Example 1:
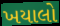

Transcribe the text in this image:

ખયાલો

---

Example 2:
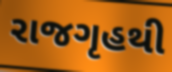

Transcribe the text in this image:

રાજગૃહથી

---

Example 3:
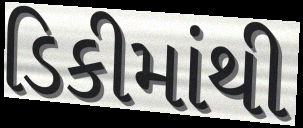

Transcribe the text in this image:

ડિકીમાંથી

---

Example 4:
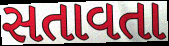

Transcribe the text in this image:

સતાવતા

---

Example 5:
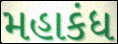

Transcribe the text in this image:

મહાકંધ